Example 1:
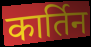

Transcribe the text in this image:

कार्तिन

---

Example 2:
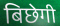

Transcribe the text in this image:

बिछेगी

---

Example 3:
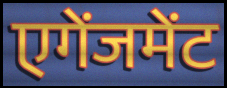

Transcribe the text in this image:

एगेंजमेंट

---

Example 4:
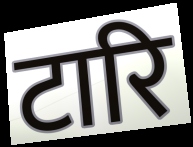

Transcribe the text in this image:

टारि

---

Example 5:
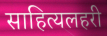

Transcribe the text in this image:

साहित्यलहरी